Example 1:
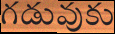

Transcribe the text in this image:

గడువుకు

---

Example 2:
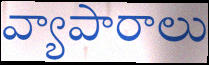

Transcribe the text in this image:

వ్యాపారాలు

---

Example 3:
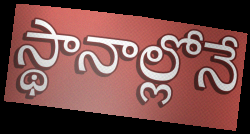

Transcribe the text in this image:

స్థానాల్లోనే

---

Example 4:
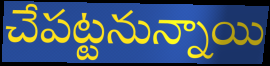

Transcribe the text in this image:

చేపట్టనున్నాయి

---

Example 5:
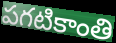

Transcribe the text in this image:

పగటికాంతి